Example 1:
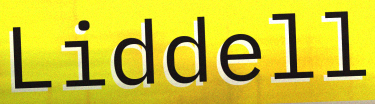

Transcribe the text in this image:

Liddell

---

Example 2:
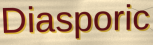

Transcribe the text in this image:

Diasporic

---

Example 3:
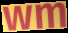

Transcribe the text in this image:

wm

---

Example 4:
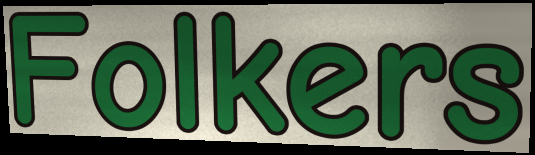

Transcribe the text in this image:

Folkers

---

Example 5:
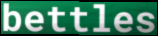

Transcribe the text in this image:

bettles